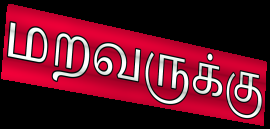
மறவருக்கு